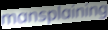
mansplaining